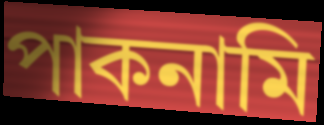
পাকনামি